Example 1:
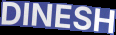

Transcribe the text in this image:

DINESH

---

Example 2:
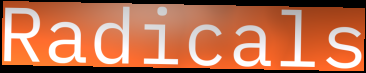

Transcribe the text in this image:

Radicals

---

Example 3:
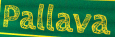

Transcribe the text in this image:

Pallava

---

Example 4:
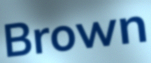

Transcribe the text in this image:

Brown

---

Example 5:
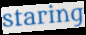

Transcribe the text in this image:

staring